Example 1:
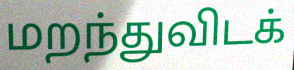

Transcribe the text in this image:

மறந்துவிடக்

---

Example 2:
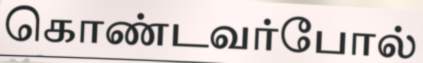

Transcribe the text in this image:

கொண்டவர்போல்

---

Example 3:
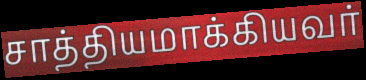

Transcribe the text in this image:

சாத்தியமாக்கியவர்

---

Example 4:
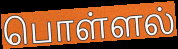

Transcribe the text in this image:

பொள்ளல்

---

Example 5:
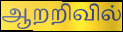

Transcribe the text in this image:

ஆறறிவில்